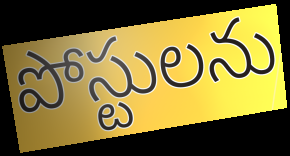
పోస్టులను